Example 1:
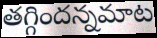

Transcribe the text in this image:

తగ్గిందన్నమాట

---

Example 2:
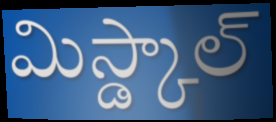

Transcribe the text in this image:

మిస్డ్కాల్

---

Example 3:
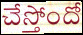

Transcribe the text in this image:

చేస్తోందో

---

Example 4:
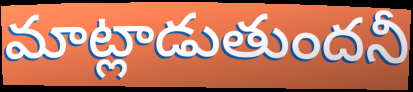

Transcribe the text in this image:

మాట్లాడుతుందనీ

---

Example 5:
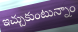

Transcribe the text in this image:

ఇచ్చుకుంటున్నాం